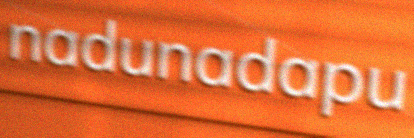
nadunadapu